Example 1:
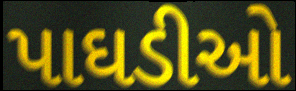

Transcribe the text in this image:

પાઘડીઓ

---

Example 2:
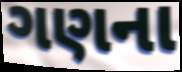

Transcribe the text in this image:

ગણના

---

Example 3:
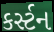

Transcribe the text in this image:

કર્સ્ટન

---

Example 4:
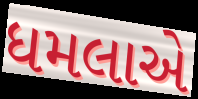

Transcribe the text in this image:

ધમલાએ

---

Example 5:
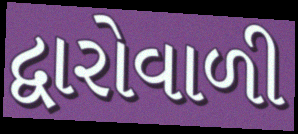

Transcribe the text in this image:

દ્વારોવાળી